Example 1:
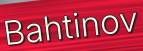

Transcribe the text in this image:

Bahtinov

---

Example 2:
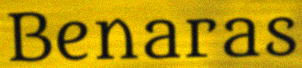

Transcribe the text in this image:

Benaras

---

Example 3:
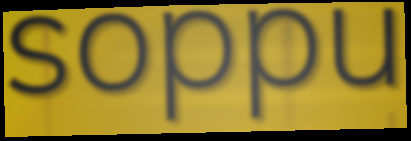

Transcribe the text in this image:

soppu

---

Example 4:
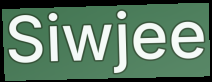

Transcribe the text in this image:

Siwjee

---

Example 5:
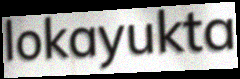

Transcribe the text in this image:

lokayukta